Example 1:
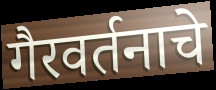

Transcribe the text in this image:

गैरवर्तनाचे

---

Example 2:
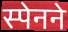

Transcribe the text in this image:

स्पेनने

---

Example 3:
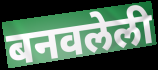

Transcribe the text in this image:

बनवलेली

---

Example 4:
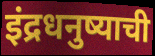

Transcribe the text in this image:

इंद्रधनुष्याची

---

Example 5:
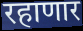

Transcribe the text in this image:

रहाणार